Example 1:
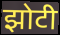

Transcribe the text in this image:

झोटी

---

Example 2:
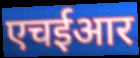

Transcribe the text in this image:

एचईआर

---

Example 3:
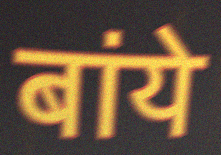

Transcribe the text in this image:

बांये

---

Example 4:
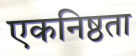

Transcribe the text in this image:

एकनिष्ठता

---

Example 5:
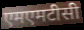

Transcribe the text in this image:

एमएमटीसी